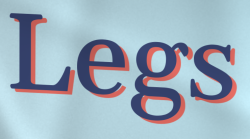
Legs